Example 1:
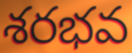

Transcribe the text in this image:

శరభవ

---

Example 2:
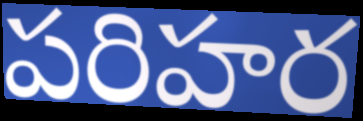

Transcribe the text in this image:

పరిహర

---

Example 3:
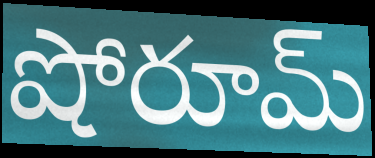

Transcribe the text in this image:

షోరూమ్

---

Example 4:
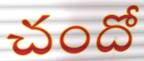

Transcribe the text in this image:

చందో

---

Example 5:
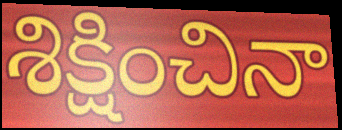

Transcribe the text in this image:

శిక్షించినా